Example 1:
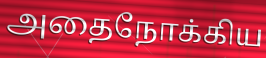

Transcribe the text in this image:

அதைநோக்கிய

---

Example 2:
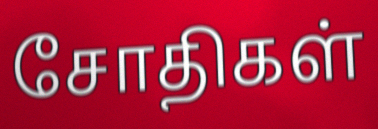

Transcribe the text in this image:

சோதிகள்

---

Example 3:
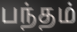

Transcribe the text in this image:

பந்தம்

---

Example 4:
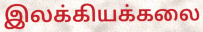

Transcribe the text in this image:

இலக்கியக்கலை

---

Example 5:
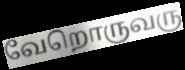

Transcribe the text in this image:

வேறொருவரு